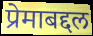
प्रेमाबद्दल